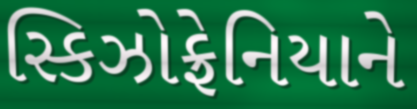
સ્કિઝોફ્રેનિયાને